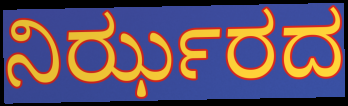
ನಿರ್ಝರದ